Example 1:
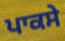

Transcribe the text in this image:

ਪਾਕਸੇ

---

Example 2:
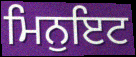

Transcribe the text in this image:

ਮਿਨੁਇਟ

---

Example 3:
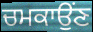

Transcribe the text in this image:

ਚਮਕਾਉਂਣ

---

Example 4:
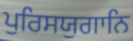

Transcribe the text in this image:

ਪੁਰਿਸਯੁਗਾਨਿ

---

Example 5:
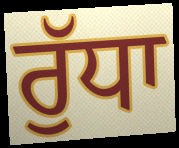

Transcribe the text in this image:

ਰੁੱਧਾ